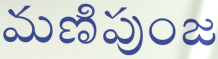
మణిపుంజ